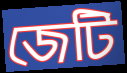
জেটি